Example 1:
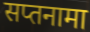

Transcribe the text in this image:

सप्तनामा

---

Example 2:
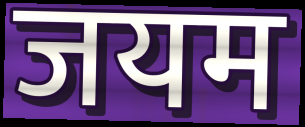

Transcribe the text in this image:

जयम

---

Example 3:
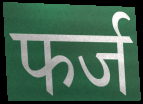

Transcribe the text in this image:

फर्ज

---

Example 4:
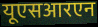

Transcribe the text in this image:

यूएसआरएन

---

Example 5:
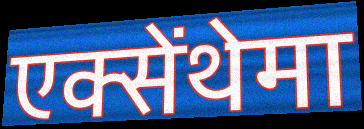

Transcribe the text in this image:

एक्सेंथेमा